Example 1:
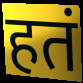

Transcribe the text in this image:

हतं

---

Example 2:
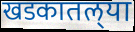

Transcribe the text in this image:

खडकातल्या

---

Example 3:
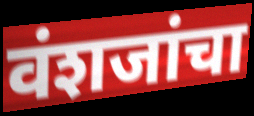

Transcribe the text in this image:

वंशजांचा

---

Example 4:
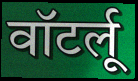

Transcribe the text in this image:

वॉटर्लू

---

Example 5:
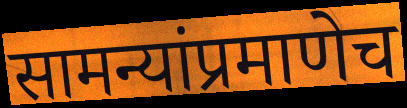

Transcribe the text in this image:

सामन्यांप्रमाणेच